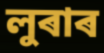
লুৰাৰ